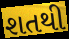
શતથી